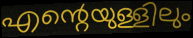
എന്റെയുള്ളിലും